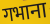
गभाना